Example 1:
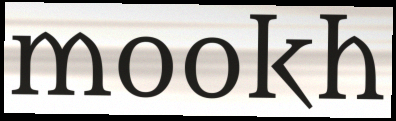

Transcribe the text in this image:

mookh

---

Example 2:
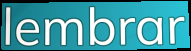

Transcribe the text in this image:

lembrar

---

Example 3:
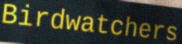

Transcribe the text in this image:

Birdwatchers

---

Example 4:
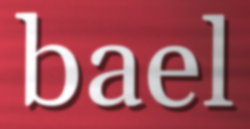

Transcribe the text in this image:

bael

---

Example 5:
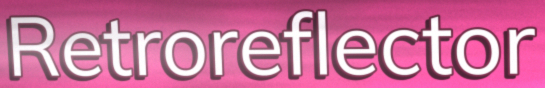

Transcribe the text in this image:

Retroreflector